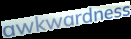
awkwardness